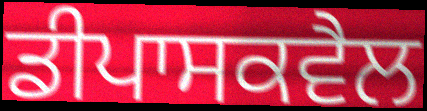
ਡੀਪਾਸਕਵੈਲ